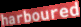
harboured